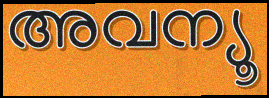
അവന്യൂ